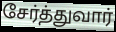
சேர்த்துவார்